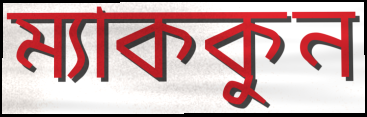
ম্যাককুন